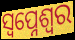
ସ୍ଵପ୍ନେଶ୍ଵର